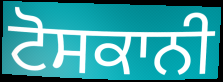
ਟੋਸਕਾਨੀ